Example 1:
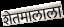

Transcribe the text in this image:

शेतमालाला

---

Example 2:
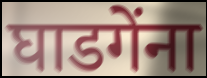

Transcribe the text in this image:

घाडगेंना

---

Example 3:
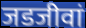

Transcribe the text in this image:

जडजीवां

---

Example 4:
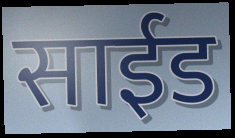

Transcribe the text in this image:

साईड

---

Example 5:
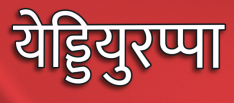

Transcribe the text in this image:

येड्डियुरप्पा